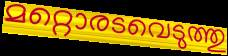
മറ്റൊരടവെടുത്തു